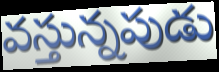
వస్తున్నపుడు